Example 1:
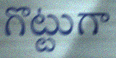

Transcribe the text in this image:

గొట్టుగా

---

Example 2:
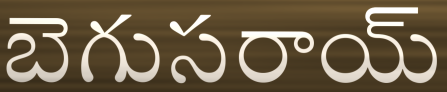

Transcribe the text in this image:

బెగుసరాయ్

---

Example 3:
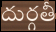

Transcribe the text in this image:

దుర్గతీ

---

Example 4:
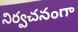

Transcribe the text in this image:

నిర్వచనంగా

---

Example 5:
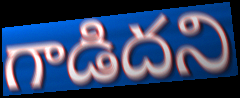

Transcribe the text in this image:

గాడిదని